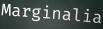
Marginalia